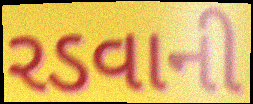
રડવાની